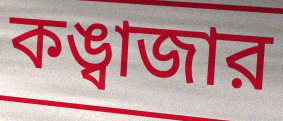
কঙ্বাজার